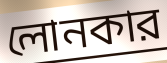
লোনকার